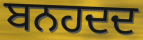
ਬਨਹਦਦ